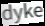
dyke